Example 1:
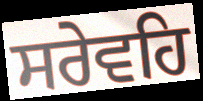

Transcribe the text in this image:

ਸਰੇਵਹਿ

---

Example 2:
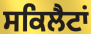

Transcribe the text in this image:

ਸਕਿਲੈਟਾਂ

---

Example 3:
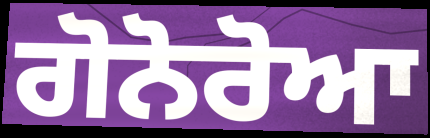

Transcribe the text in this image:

ਗੋਨੋਰੋਆ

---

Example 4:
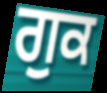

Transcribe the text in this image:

ਗੁਕ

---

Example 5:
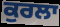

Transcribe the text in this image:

ਕੁਰਲਾ